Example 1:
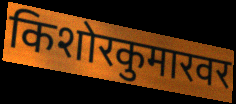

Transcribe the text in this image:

किशोरकुमारवर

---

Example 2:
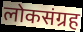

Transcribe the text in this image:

लोकसंग्रह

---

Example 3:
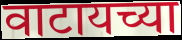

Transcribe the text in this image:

वाटायच्या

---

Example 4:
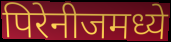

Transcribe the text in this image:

पिरेनीजमध्ये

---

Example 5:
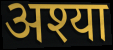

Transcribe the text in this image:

अश्या